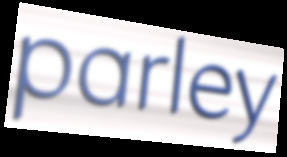
parley